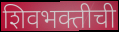
शिवभक्तीची